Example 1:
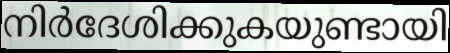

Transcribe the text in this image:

നിർദേശിക്കുകയുണ്ടായി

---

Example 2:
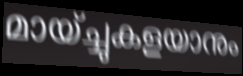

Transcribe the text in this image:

മായ്ച്ചുകളയാനും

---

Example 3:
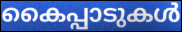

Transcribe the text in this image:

കൈപ്പാടുകൾ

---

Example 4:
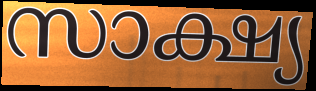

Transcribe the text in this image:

സാക്ഷ്യ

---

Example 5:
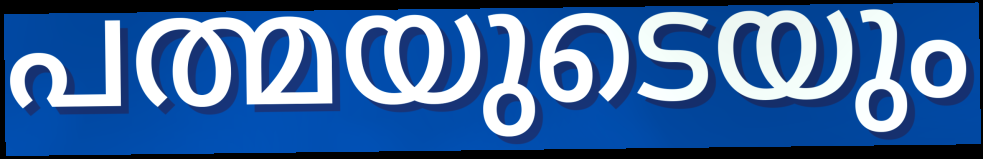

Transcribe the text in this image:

പത്മയുടെയും